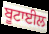
ਬੂਟਾਈਲ